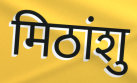
मिठांशु